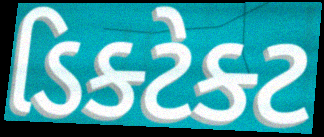
ડિક્ટેક્ટ